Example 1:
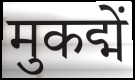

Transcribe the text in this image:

मुकद्में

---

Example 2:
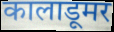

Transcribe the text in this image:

कालाडूमर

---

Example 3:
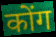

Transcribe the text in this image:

कोंग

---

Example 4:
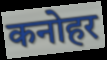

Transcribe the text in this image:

कनोहर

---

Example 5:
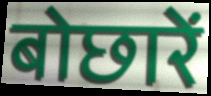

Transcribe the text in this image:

बोछारें